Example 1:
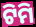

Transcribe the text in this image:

ଟିମି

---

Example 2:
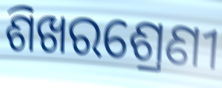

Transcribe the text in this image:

ଶିଖରଶ୍ରେଣୀ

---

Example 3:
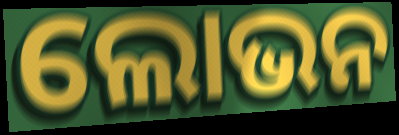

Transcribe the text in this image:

ଲୋଭନ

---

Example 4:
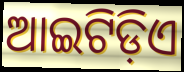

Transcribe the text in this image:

ଆଇଟିଡ଼ିଏ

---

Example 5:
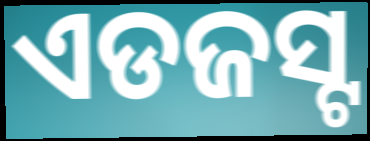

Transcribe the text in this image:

ଏଡଜସ୍ଟ